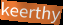
keerthy